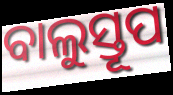
ବାଲୁସ୍ତୂପ